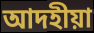
আদহীয়া